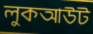
লুকআউট